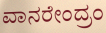
ವಾನರೇಂದ್ರಂ